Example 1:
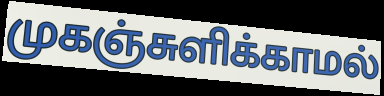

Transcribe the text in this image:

முகஞ்சுளிக்காமல்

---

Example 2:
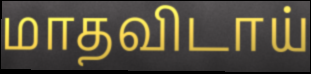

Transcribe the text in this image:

மாதவிடாய்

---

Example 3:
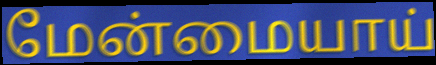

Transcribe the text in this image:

மேன்மையாய்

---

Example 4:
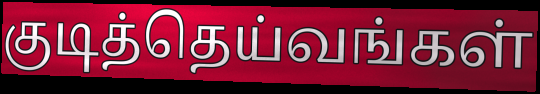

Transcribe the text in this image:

குடித்தெய்வங்கள்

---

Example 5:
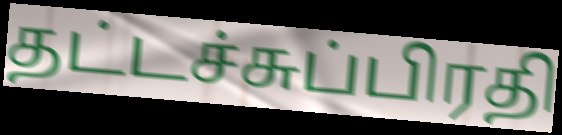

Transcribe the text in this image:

தட்டச்சுப்பிரதி